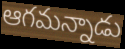
ఆగమన్నాడు